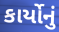
કાર્યોનું